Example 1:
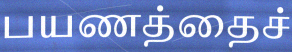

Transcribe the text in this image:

பயணத்தைச்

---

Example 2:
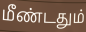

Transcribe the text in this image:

மீண்டதும்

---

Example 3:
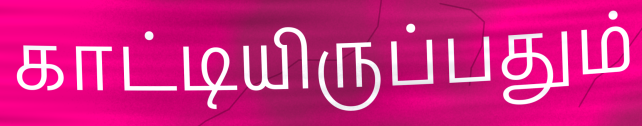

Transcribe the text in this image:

காட்டியிருப்பதும்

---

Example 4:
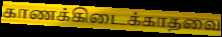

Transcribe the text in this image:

காணக்கிடைக்காதவை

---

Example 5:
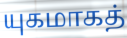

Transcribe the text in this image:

யுகமாகத்